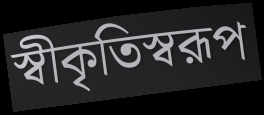
স্বীকৃতিস্বরূপ